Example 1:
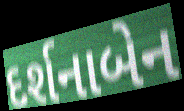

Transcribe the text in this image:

દર્શનાબેન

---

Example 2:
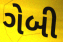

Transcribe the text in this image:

ગેબી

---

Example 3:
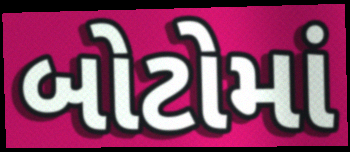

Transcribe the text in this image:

બોટોમાં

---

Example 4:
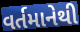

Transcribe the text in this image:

વર્તમાનેથી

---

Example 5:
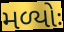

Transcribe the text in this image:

મળ્યોઃ